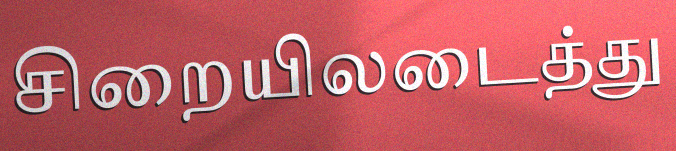
சிறையிலடைத்து